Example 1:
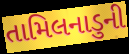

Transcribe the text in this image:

તામિલનાડુની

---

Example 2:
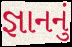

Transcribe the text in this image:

જ્ઞાનનું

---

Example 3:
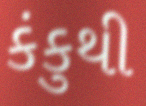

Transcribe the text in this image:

કંકુથી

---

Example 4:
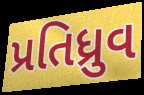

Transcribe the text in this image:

પ્રતિધ્રુવ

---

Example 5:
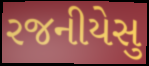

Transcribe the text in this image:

રજનીયેસુ